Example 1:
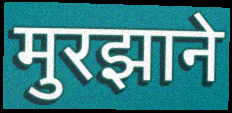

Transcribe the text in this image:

मुरझाने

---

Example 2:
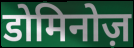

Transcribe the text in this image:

डोमिनोज़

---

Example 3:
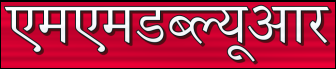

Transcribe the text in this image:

एमएमडब्ल्यूआर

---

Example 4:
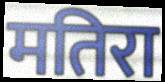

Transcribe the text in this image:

मतिरा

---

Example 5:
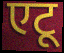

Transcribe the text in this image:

एटू